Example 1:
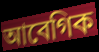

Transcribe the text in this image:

আবেগিক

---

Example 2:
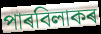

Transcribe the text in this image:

পাৰবিলাকৰ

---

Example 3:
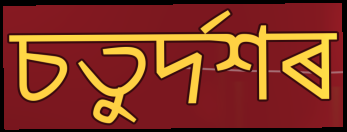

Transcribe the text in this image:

চতুৰ্দশৰ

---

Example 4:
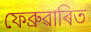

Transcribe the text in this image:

ফেব্ৰুৱাৰিত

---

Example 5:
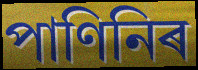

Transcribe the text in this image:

পাণিনিৰ